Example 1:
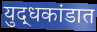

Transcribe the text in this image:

युद्धकांडात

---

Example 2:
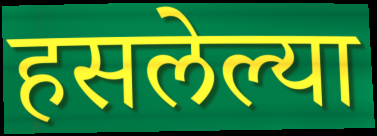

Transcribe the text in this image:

हसलेल्या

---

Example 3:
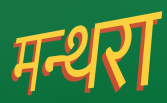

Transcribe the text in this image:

मन्थरा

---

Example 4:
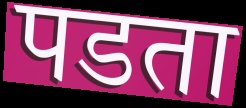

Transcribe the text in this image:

पडता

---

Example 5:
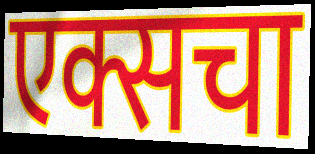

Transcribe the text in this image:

एक्सचा